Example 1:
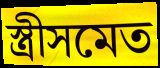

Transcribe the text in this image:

স্ত্রীসমেত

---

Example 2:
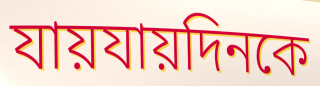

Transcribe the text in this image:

যায়যায়দিনকে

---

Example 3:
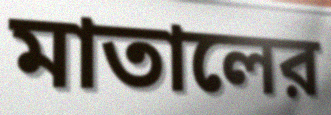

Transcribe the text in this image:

মাতালের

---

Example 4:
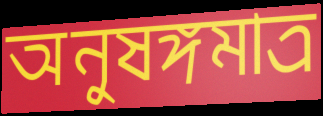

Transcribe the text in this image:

অনুষঙ্গমাত্র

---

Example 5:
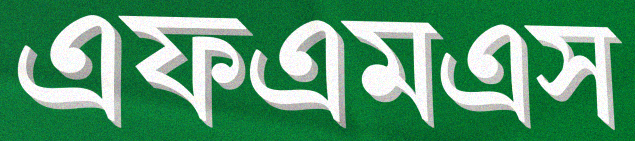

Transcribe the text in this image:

এফএমএস